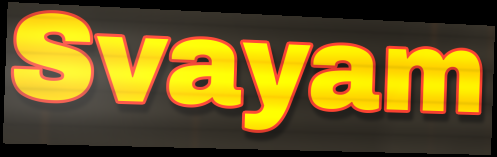
Svayam